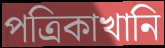
পত্রিকাখানি